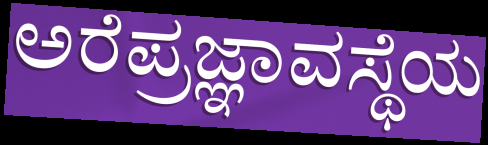
ಅರೆಪ್ರಜ್ಞಾವಸ್ಥೆಯ